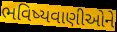
ભવિષ્યવાણીઓને